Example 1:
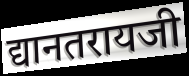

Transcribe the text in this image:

द्यानतरायजी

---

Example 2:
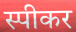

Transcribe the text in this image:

स्‍पीकर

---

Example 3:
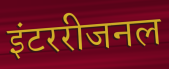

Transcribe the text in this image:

इंटररीजनल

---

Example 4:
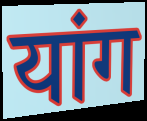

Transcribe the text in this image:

यांग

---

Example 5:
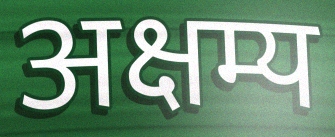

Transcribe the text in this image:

अक्षम्‍य